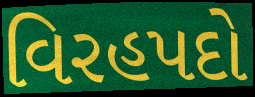
વિરહપદો